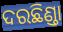
ଦରଛିଣ୍ଡା